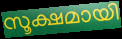
സൂക്ഷമായി